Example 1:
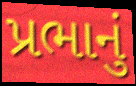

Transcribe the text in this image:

પ્રભાનું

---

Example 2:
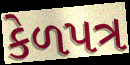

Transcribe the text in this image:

કેળપત્ર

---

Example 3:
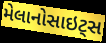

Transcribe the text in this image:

મેલાનોસાઇટ્સ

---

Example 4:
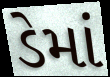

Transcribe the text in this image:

ડેમાં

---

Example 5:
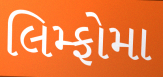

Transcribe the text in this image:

લિમ્ફોમા